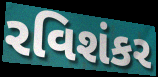
રવિશંકર